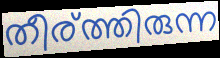
തീര്ത്തിരുന്ന